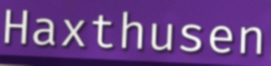
Haxthusen